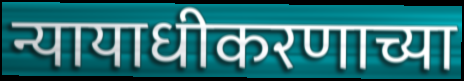
न्यायाधीकरणाच्या